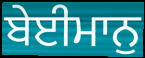
ਬੇਈਮਾਨੁ